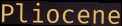
Pliocene